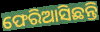
ଫେରିଆସିଛନ୍ତି